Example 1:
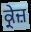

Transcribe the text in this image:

ਕ੍ਰੇਜ਼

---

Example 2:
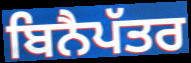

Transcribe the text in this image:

ਬਿਨੈਪੱਤਰ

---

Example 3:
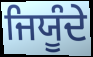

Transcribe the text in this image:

ਜਿਯੂੰਦੇ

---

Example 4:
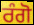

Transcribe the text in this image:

ਰੰਗੋ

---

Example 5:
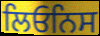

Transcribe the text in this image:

ਲਿਓਨਿਸ